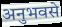
अनुभवसे